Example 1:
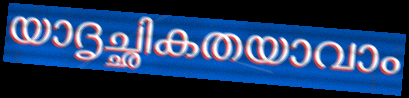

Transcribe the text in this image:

യാദൃച്ഛികതയാവാം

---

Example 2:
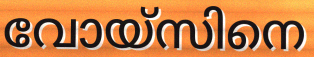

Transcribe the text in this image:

വോയ്സിനെ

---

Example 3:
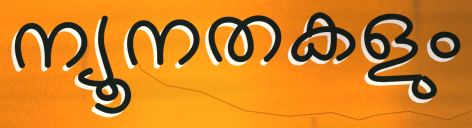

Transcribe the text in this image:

ന്യൂനതകളും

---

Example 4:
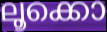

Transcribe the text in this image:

ലൂക്കൊ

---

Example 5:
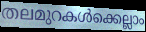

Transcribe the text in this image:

തലമുറകൾക്കെല്ലാം